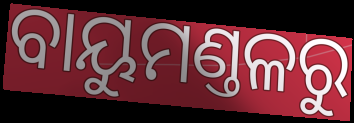
ବାୟୁମଣ୍ତଳରୁ